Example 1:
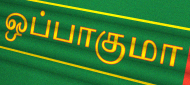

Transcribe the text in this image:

ஒப்பாகுமா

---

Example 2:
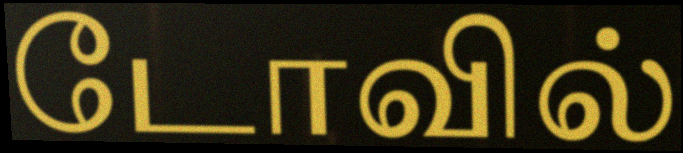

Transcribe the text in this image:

டோவில்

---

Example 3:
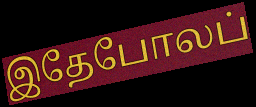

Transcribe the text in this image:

இதேபோலப்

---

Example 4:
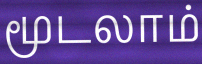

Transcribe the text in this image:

மூடலாம்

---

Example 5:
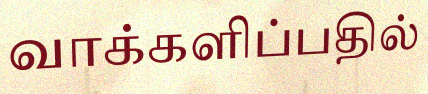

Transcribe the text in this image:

வாக்களிப்பதில்